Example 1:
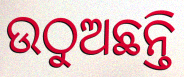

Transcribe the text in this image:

ଉଠୁଅଛନ୍ତି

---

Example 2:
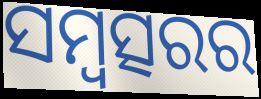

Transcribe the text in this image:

ସମ୍ବତ୍ସରର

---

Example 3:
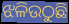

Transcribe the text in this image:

ଝଳିଉଠୁଛି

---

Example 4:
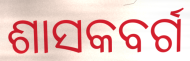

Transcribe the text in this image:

ଶାସକବର୍ଗ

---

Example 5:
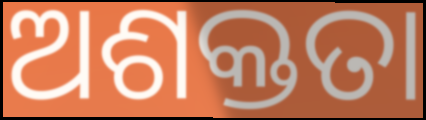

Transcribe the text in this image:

ଅଶକ୍ତତା